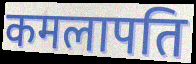
कमलापति